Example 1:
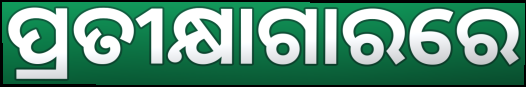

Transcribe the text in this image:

ପ୍ରତୀକ୍ଷାଗାରରେ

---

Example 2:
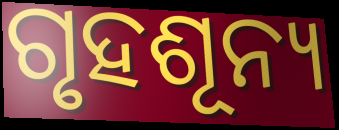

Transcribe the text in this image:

ଗୃହଶୂନ୍ୟ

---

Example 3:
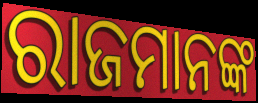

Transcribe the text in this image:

ରାଜମାନଙ୍କ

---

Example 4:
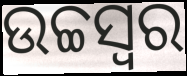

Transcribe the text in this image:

ଉଚ୍ଚସ୍ଵର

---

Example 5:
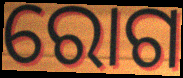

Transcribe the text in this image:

ରୋଗ